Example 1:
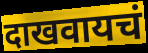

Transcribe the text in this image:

दाखवायचं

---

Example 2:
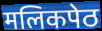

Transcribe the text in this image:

मलिकपेठ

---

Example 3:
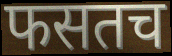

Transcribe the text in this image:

फसतच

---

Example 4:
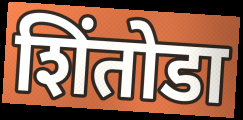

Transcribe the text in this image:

शिंतोडा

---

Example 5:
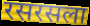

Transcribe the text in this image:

रसरसला